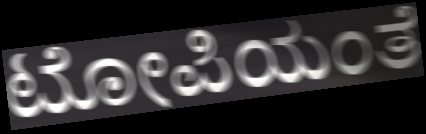
ಟೋಪಿಯಂತೆ